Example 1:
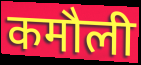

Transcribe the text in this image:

कमौली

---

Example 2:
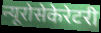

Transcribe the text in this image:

न्यूरोसेकेरेटरी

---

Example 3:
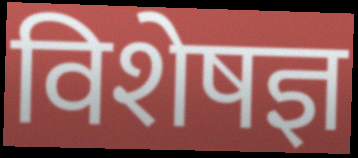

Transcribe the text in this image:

विशेषज्ञ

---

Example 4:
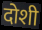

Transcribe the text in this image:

दोशी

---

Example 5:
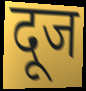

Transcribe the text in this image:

दूज